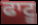
ਫਾਟੂ